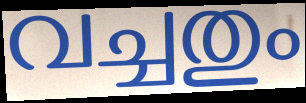
വച്ചതും